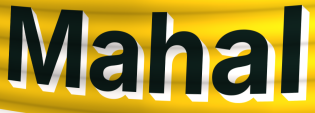
Mahal